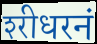
श्रीधरनं